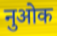
नुओक